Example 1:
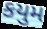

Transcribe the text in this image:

કયુમ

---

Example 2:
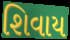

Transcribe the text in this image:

શિવાય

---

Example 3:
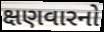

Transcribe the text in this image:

ક્ષણવારનો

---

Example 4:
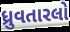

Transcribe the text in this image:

ધ્રુવતારલો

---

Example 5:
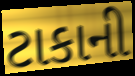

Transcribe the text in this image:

ટાકાની